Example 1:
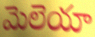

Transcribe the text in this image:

మెలెయా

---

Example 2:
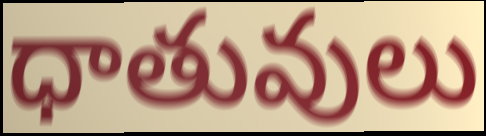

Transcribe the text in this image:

ధాతువులు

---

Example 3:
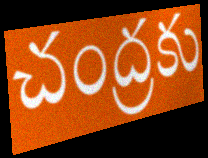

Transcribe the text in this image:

చంద్రకు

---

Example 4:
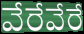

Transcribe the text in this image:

వేరేవేరే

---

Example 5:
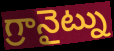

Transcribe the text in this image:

గ్రానైట్ను